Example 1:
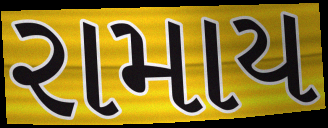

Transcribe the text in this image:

રામાય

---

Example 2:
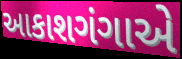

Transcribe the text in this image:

આકાશગંગાએ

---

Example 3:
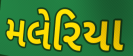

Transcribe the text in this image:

મલેરિયા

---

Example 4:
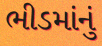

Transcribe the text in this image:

ભીડમાંનું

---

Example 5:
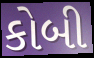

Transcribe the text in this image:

કોબી